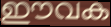
ഈവക